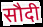
सौदी